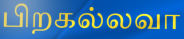
பிறகல்லவா